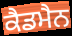
ਕੈਡਮੈਨ